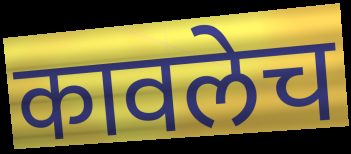
कावलेच